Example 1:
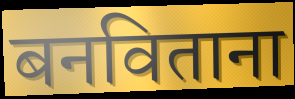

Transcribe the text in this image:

बनविताना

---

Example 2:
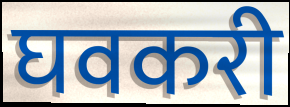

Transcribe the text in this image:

घवकरी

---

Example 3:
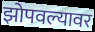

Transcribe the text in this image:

झोपवल्यावर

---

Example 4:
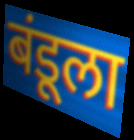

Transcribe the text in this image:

बंडूला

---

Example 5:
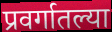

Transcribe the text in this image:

प्रवर्गातल्या